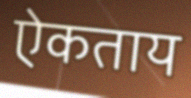
ऐकताय